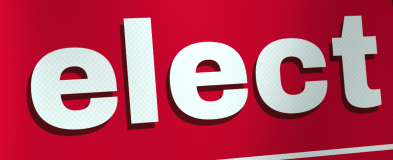
elect